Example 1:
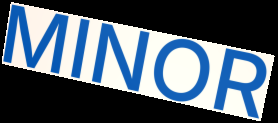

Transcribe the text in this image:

MINOR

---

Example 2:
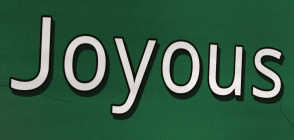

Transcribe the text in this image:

Joyous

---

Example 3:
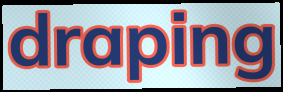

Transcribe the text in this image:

draping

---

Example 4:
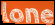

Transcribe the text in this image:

lone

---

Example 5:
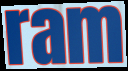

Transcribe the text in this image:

ram